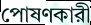
পোষণকারী